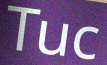
Tuc